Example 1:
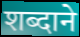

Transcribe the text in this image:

शब्दाने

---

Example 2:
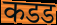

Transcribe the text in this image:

कडड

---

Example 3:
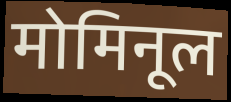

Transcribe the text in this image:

मोमिनूल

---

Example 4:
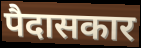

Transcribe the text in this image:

पैदासकार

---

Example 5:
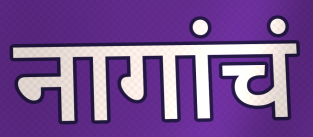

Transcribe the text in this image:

नागांचं